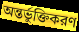
অন্তর্ভুক্তিকরণ